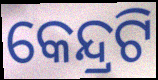
କେନ୍ଦ୍ରଟି